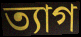
ত্যাগ